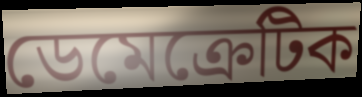
ডেমেক্রেটিক